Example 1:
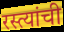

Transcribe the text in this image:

रस्त्यांची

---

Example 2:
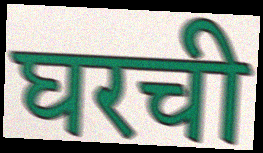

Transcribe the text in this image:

घरची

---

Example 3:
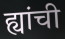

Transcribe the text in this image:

ह्यांची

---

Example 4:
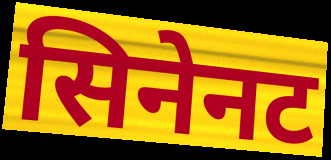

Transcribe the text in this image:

सिनेनट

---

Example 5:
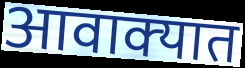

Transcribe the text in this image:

आवाक्‍यात